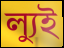
ল্যুই